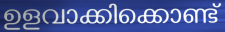
ഉളവാക്കിക്കൊണ്ട്